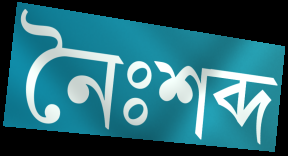
নৈঃশব্দ